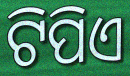
ଟିପିଏ